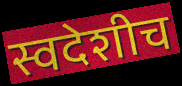
स्वदेशीच